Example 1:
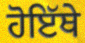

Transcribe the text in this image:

ਹੋਇੱਥੇ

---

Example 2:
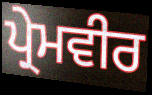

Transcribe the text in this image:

ਪ੍ਰੇਮਵੀਰ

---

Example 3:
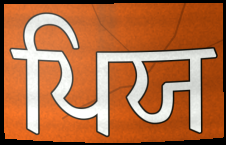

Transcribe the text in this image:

ਪਿਯ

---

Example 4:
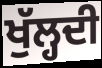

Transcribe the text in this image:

ਖੁੱਲ੍ਹਦੀ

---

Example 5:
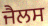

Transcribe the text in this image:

ਜੈਲਸ